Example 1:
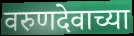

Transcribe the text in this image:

वरुणदेवाच्या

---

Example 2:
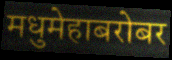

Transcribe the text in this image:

मधुमेहाबरोबर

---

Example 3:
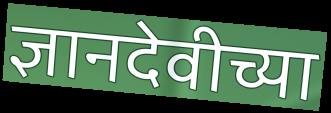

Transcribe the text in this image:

ज्ञानदेवीच्या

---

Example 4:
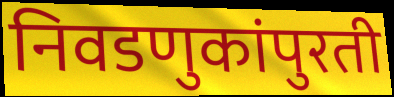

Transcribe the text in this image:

निवडणुकांपुरती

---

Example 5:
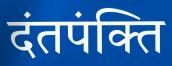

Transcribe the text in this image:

दंतपंक्ति